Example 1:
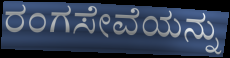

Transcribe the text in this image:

ರಂಗಸೇವೆಯನ್ನು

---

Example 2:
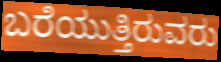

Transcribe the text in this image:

ಬರೆಯುತ್ತಿರುವರು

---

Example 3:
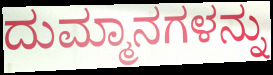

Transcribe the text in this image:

ದುಮ್ಮಾನಗಳನ್ನು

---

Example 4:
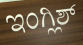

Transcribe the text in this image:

ಇಂಗ್ಲಿಶ್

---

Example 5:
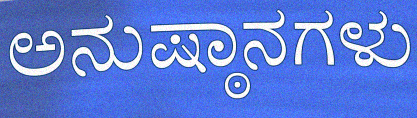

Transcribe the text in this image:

ಅನುಷ್ಠಾನಗಳು